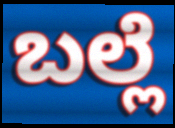
ಬಲ್ಲೆ